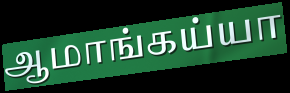
ஆமாங்கய்யா